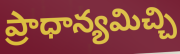
ప్రాధాన్యమిచ్చి